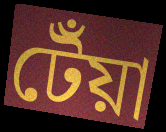
টেঁয়া